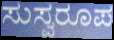
ಸುಸ್ವರೂಪ